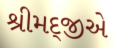
શ્રીમદ્જીએ